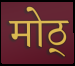
मोठ्